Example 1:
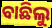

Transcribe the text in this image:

ବାଛିଲୁ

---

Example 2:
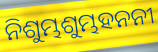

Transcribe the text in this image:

ନିଶୁମ୍ଭଶୁମ୍ଭହନନୀ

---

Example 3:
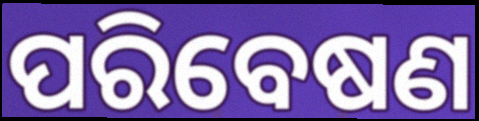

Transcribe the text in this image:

ପରିବେଷଣ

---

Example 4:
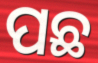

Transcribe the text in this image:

ପଛ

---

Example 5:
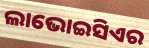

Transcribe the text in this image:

ଲାଭୋଇସିଏର